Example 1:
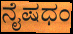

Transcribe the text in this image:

ನೈಷಧಂ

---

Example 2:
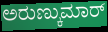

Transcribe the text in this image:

ಅರುಣ್ಕುಮಾರ್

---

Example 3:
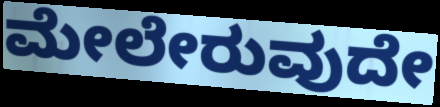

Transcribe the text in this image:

ಮೇಲೇರುವುದೇ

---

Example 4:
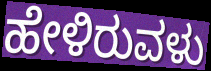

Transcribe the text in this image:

ಹೇಳಿರುವಳು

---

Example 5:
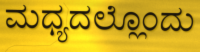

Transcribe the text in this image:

ಮಧ್ಯದಲ್ಲೊಂದು